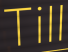
Till